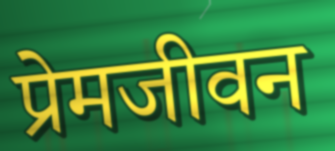
प्रेमजीवन